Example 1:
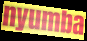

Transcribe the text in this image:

nyumba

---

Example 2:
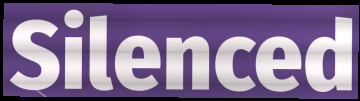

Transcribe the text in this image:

Silenced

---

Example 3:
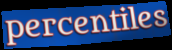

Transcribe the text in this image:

percentiles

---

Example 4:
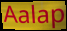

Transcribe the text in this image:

Aalap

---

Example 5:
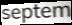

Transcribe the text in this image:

septem